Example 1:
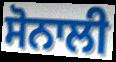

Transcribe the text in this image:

ਸੋਨਾਲੀ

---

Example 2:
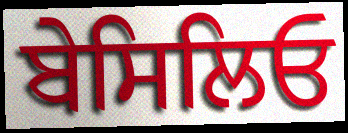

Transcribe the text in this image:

ਬੇਸਿਲਿਓ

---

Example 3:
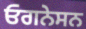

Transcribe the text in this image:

ਓਗਨੇਸਨ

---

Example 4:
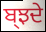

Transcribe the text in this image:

ਬ੍ਝਦੇ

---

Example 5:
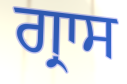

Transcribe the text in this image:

ਗ੍ਰਾਸ